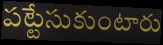
పట్టేసుకుంటారు